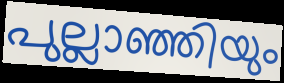
പുല്ലാഞ്ഞിയും